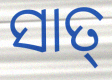
ସାତ୍